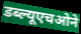
डब्ल्यूएचओने